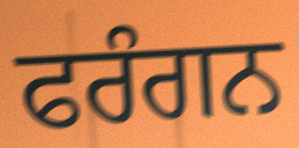
ਫਰੰਗਨ